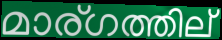
മാര്ഗത്തില്